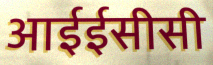
आईईसीसी